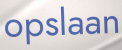
opslaan